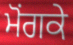
ਮੋਂਗਕੇ